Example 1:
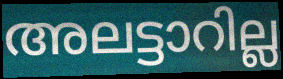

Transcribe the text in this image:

അലട്ടാറില്ല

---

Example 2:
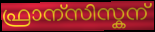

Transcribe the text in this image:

ഫ്രാന്സിസ്കന്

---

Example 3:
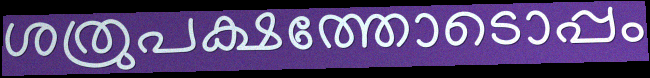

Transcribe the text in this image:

ശത്രുപക്ഷത്തോടൊപ്പം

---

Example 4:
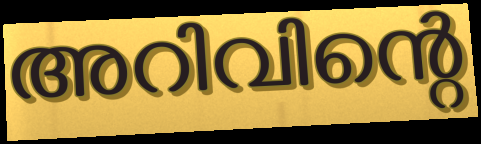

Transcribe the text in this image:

അറിവിന്റെ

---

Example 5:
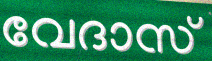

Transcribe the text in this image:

വേദാസ്